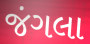
જંગલા